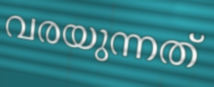
വരയുന്നത്